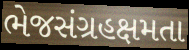
ભેજસંગ્રહક્ષમતા